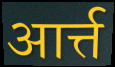
आर्त्त